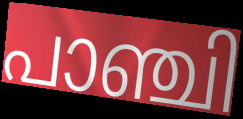
പാഞ്ചി